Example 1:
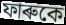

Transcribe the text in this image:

ফাৰুকে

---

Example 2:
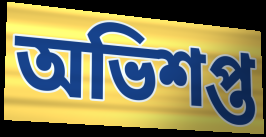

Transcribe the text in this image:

অভিশপ্ত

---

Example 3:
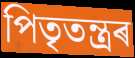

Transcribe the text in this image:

পিতৃতন্ত্ৰৰ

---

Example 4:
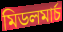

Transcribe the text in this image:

মিডলমাৰ্চ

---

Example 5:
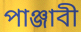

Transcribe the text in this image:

পাঞ্জাবী